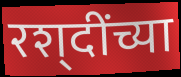
रश्दींच्या